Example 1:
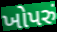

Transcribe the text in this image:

ખોપરું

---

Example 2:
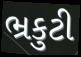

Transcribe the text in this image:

ભ્રકુટી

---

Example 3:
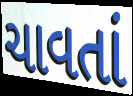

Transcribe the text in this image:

ચાવતાં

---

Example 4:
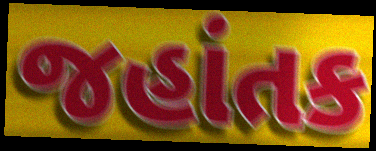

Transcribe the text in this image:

જહાંતક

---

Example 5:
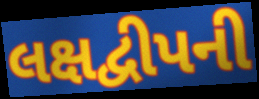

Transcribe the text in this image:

લક્ષદ્વીપની